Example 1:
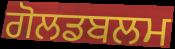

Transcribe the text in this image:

ਗੋਲਡਬਲਮ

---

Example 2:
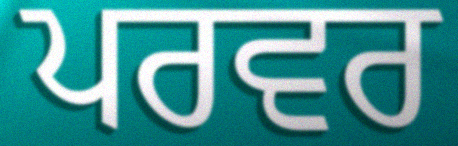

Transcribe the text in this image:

ਪਰਵਰ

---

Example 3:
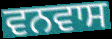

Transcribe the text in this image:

ਵਨਵਾਸ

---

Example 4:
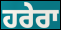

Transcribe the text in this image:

ਹਰੇਰਾ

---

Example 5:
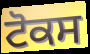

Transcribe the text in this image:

ਟੋਕਸ